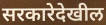
सरकारेदेखील